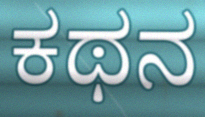
ಕಥನ